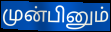
முன்பினும்